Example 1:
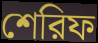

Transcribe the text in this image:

শেরিফ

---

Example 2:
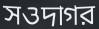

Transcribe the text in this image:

সওদাগর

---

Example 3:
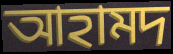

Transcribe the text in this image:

আহামদ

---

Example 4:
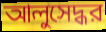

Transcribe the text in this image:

আলুসেদ্ধর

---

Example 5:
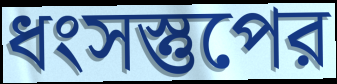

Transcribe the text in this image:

ধংসস্তুপের